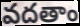
వదతాం